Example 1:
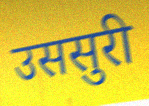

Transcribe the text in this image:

उससुरी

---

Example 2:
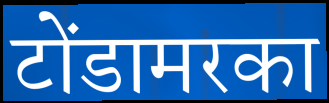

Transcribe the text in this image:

टोंडामरका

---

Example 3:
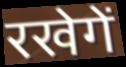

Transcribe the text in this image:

रखेगें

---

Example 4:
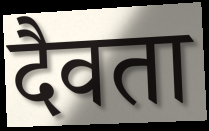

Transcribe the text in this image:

दैवता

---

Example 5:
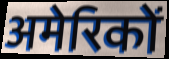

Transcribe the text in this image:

अमेरिकों